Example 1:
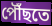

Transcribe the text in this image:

পৌঁছতে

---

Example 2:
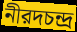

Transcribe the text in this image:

নীরদচন্দ্র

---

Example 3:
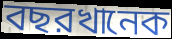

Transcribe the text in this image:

বছরখানেক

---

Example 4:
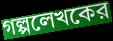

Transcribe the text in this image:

গল্পলেখকের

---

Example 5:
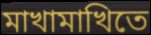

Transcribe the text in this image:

মাখামাখিতে